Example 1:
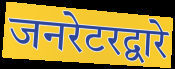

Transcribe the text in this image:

जनरेटरद्वारे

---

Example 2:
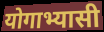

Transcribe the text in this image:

योगाभ्यासी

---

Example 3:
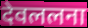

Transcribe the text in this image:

देवललना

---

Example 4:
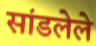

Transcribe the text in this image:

सांडलेले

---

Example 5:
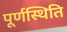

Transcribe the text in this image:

पूर्णस्थिति